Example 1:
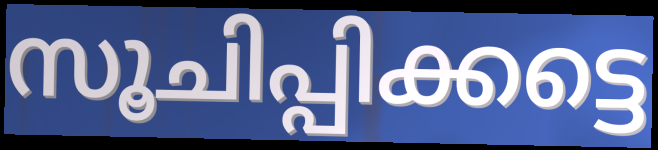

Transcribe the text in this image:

സൂചിപ്പിക്കട്ടെ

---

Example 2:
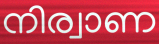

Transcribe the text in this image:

നിര്വാണ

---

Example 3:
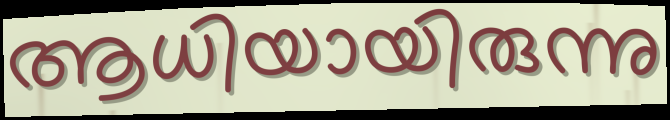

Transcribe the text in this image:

ആധിയായിരുന്നു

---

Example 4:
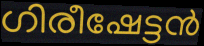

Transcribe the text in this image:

ഗിരീഷേട്ടൻ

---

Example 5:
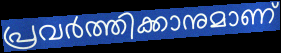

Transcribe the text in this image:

പ്രവർത്തിക്കാനുമാണ്